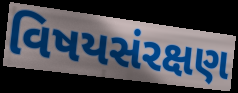
વિષયસંરક્ષણ